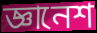
জ্ঞানেশ